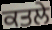
ਕਤਲੇ